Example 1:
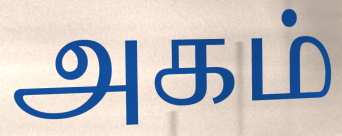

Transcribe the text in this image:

அகம்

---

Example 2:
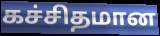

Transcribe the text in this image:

கச்சிதமான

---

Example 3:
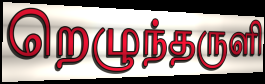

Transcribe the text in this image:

றெழுந்தருளி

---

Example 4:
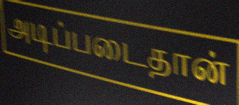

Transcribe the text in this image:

அடிப்படைதான்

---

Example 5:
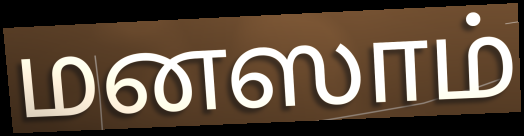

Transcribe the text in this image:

மனஸாம்